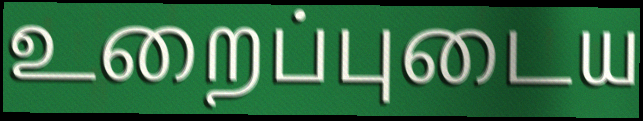
உறைப்புடைய